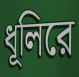
ধূলিরে